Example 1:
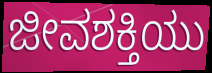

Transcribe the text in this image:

ಜೀವಶಕ್ತಿಯು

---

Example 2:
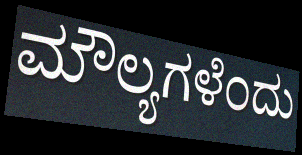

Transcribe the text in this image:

ಮೌಲ್ಯಗಳೆಂದು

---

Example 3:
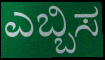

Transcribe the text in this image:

ಎಬ್ಬಿಸ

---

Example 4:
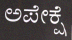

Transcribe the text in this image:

ಅಪೇಕ್ಷೆ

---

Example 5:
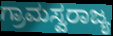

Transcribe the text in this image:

ಗ್ರಾಮಸ್ವರಾಜ್ಯ